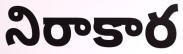
నిరాకార